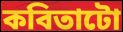
কবিতাটো